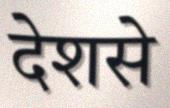
देशसे